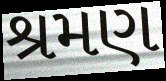
શ્રમણ